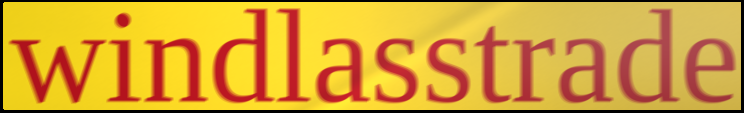
windlasstrade